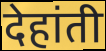
देहांती